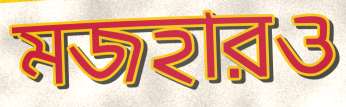
মজহারও